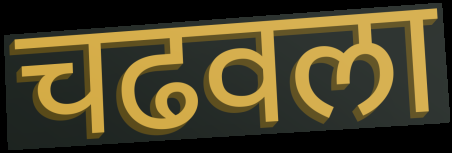
चढवला